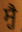
ਸ੍ਹੈ